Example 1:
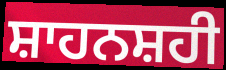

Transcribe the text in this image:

ਸ਼ਾਹਨਸ਼ਹੀ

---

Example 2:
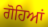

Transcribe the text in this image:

ਗੋਹਿਆਂ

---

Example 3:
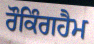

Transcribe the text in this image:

ਰੌਕਿੰਗਹੈਮ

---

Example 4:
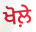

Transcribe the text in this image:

ਖੋਲ਼ੇ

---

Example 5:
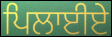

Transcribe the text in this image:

ਪਿਲਾਈਏ